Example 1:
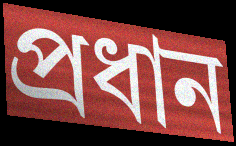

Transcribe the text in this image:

প্ৰধান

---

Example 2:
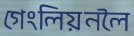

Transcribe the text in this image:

গেংলিয়নলৈ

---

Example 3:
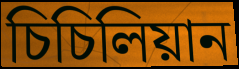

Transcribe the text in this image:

চিচিলিয়ান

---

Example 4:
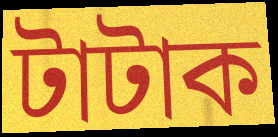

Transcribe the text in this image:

টাটাক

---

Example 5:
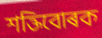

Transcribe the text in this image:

শক্তিবোৰক